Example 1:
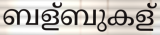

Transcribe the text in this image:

ബള്ബുകള്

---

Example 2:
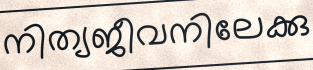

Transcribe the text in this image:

നിത്യജീവനിലേക്കു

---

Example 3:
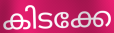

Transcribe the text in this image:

കിടക്കേ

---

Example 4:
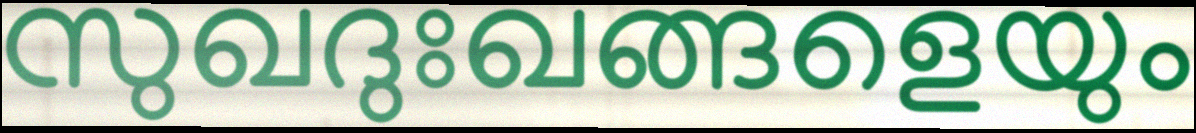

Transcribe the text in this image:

സുഖദുഃഖങ്ങളെയും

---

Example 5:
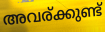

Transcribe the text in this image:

അവര്ക്കുണ്ട്